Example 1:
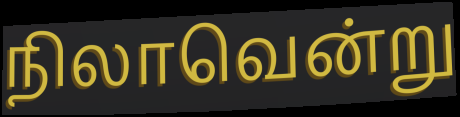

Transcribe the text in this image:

நிலாவென்று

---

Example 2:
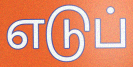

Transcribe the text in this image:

எடுப்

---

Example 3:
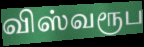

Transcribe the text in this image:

விஸ்வரூப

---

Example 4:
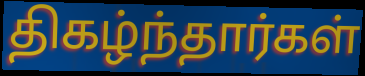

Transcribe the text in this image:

திகழ்ந்தார்கள்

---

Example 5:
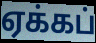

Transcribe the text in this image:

ஏக்கப்